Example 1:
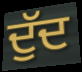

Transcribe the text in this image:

ਦੁੱਦ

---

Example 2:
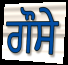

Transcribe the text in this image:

ਗੌਸੇ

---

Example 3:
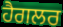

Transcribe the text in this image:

ਹੈਗਲਰ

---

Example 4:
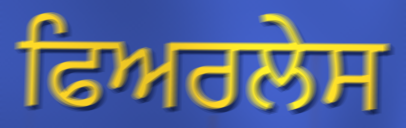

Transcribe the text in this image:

ਫਿਅਰਲੇਸ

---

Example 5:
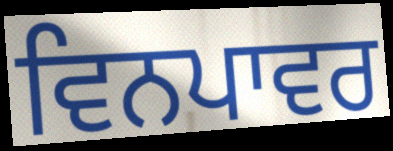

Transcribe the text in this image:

ਵਿਨਪਾਵਰ